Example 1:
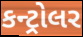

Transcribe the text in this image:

કન્ટ્રોલર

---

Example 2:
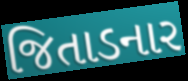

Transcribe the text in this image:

જિતાડનાર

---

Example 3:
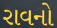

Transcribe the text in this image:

રાવનો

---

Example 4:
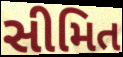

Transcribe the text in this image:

સીમિત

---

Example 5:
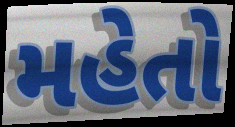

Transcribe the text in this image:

મહેતો